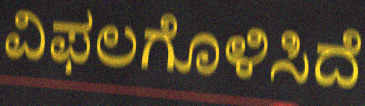
ವಿಫಲಗೊಳಿಸಿದೆ